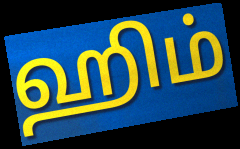
ஹிம்